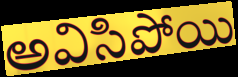
అవిసిపోయి